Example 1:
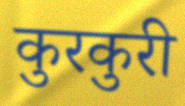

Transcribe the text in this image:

कुरकुरी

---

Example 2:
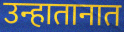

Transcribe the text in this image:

उन्हातानात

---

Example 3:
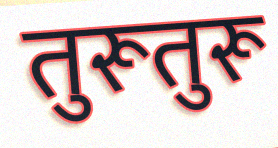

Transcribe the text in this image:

तुरूतुरू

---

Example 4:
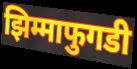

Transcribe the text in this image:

झिम्माफुगडी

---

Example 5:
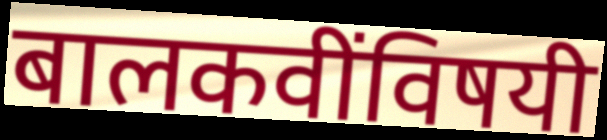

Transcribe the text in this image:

बालकवींविषयी